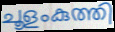
ചൂളംകുത്തി